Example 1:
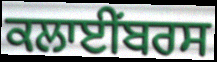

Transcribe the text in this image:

ਕਲਾਈਂਬਰਸ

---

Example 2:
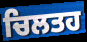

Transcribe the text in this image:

ਚਿਲਤਹ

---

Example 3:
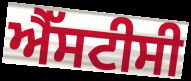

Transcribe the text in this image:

ਐੱਸਟੀਸੀ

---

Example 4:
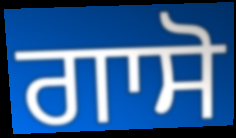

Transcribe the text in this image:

ਗਾਸੋ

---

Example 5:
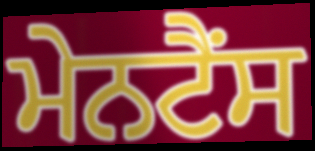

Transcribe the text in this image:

ਮੇਨਟੈਂਸ